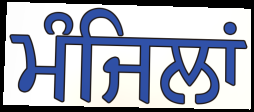
ਮੰਜਿਲਾਂ